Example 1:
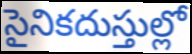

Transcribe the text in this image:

సైనికదుస్తుల్లో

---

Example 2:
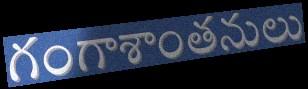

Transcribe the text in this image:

గంగాశాంతనులు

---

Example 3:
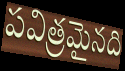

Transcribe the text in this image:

పవిత్రమైనది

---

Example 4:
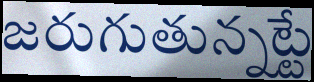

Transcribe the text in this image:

జరుగుతున్నట్టే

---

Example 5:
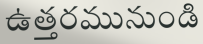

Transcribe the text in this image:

ఉత్తరమునుండి